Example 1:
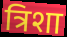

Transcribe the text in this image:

त्रिशा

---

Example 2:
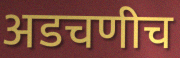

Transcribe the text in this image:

अडचणीच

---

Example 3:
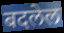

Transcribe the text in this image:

बदलेल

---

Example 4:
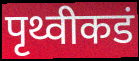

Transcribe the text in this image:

पृथ्वीकडं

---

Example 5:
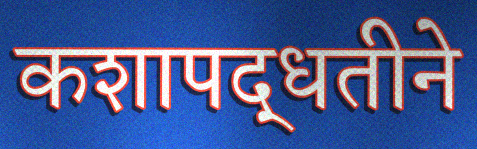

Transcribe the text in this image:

कशापद्धतीने